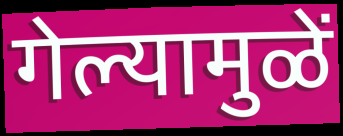
गेल्यामुळें